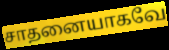
சாதனையாகவே